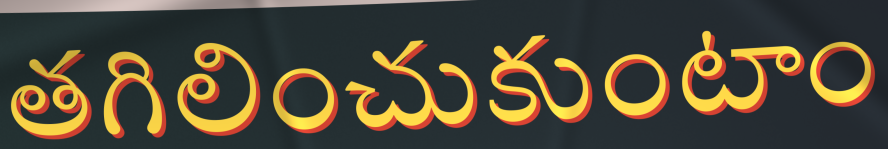
తగిలించుకుంటాం